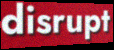
disrupt